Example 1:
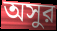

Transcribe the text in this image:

অসুর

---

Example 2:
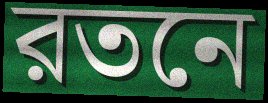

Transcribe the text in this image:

রতনে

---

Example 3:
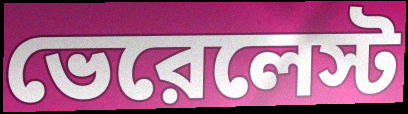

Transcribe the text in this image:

ভেরেলেস্ট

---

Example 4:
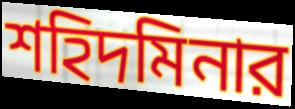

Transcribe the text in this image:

শহিদমিনার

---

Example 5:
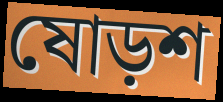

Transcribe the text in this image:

ষোড়শ